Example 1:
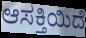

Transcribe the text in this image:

ಆಸಕ್ತಿಯಿದೆ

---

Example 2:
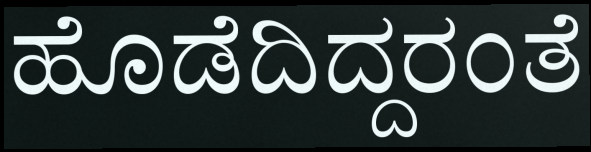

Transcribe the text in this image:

ಹೊಡೆದಿದ್ದರಂತೆ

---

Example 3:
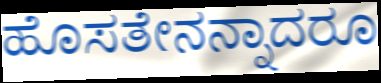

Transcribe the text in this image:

ಹೊಸತೇನನ್ನಾದರೂ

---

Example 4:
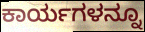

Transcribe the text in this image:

ಕಾರ್ಯಗಳನ್ನೂ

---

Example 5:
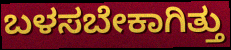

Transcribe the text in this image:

ಬಳಸಬೇಕಾಗಿತ್ತು